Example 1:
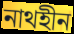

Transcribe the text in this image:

নাথহীন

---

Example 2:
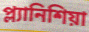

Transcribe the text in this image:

প্ল্যানিশিয়া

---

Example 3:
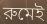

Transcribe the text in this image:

রুমেই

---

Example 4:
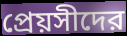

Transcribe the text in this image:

প্রেয়সীদের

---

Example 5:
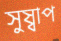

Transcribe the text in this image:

সুষ্বাপ